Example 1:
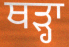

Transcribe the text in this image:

ਥੜ੍ਹਾ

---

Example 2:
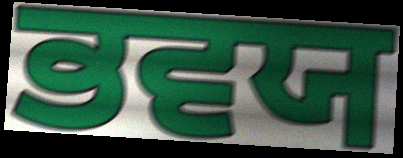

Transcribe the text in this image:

ਭਵਯ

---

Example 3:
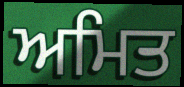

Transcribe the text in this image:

ਅਮਿਤ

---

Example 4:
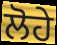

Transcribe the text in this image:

ਲੋਹੇ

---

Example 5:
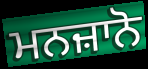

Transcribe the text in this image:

ਮਨਜ਼ਾਨੋ